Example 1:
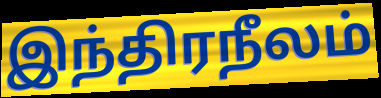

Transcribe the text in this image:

இந்திரநீலம்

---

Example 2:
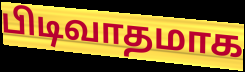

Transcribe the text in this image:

பிடிவாதமாக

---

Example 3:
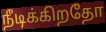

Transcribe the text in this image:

நீடிக்கிறதோ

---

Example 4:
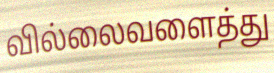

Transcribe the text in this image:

வில்லைவளைத்து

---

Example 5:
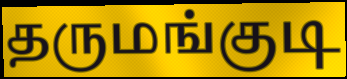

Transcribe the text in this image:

தருமங்குடி